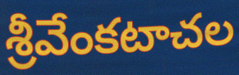
శ్రీవేంకటాచల